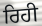
ਰਿਹੀ